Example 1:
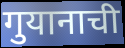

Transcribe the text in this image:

गुयानाची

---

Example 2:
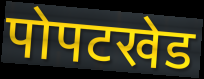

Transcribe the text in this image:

पोपटखेड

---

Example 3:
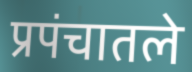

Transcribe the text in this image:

प्रपंचातले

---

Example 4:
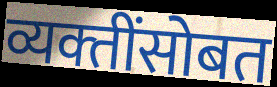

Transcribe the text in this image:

व्यक्‍तींसोबत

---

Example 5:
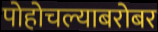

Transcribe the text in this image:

पोहोचल्याबरोबर